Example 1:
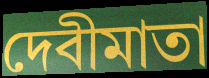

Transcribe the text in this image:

দেবীমাতা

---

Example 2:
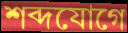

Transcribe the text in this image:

শব্দযোগে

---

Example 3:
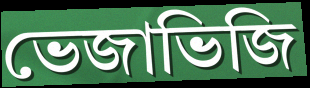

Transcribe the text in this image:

ভেজাভিজি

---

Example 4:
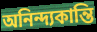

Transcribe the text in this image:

অনিন্দ্যকান্তি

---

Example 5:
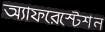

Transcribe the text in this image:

অ্যাফরেস্টেশন